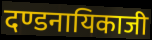
दण्डनायिकाजी